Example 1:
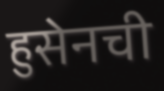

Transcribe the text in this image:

हुसेनची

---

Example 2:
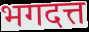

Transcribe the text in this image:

भगदत्त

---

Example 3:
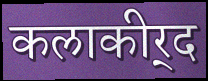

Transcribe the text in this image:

कलाकीर्द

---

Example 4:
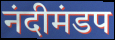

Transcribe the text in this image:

नंदीमंडप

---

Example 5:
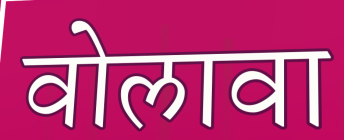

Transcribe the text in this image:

वोलावा